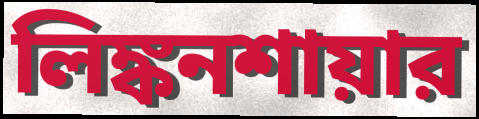
লিঙ্কনশায়ার